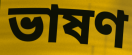
ভাষণ